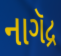
નાગૅદ્ર